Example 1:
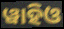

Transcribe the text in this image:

ୱାହିଓ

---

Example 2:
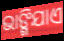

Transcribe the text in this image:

ଭାଙ୍ଗିଯାଏ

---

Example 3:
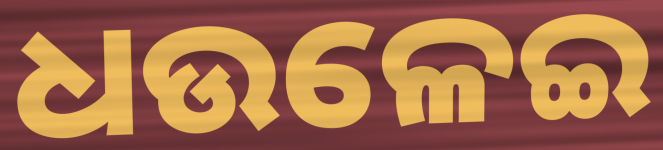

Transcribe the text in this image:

ଧଉଳେଇ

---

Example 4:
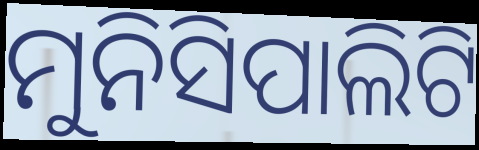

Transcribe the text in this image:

ମୁନିସିପାଲିଟି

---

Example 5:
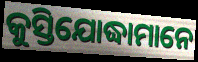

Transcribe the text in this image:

କୁସ୍ତିଯୋଦ୍ଧାମାନେ